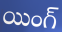
యింగ్